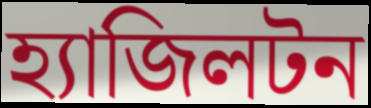
হ্যাজিলটন